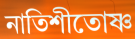
নাতিশীতোষ্ণ